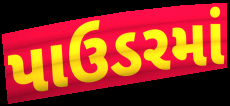
પાઉડરમાં